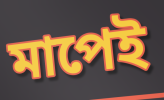
মাপেই